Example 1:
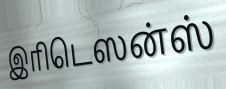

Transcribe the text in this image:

இரிடெஸன்ஸ்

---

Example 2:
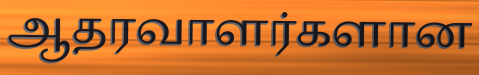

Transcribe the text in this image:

ஆதரவாளர்களான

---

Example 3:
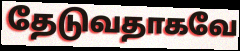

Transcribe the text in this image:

தேடுவதாகவே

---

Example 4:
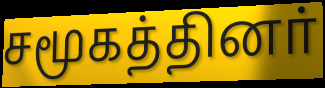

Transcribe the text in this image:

சமூகத்தினர்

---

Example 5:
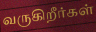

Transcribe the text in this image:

வருகிறீர்கள்